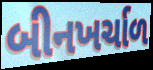
બીનખર્ચાળ